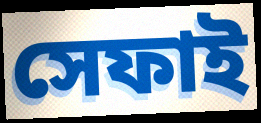
সেফাই